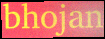
bhojan